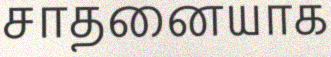
சாதனையாக